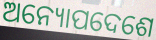
ଅନ୍ୟୋପଦେଶେ